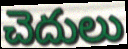
చెదులు